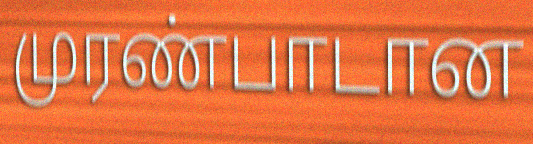
முரண்பாடான